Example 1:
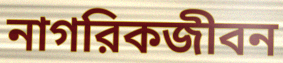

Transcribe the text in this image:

নাগরিকজীবন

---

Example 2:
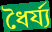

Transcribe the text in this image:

ধৈর্য্য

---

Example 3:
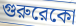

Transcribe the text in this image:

গুরুরেকো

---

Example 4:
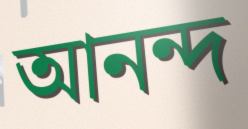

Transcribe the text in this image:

আনন্দ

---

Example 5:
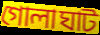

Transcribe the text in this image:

গোলাঘাট